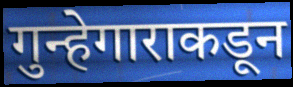
गुन्हेगाराकडून